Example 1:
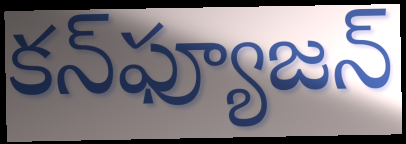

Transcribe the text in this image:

కన్‌ఫ్యూజన్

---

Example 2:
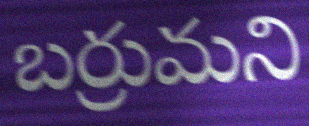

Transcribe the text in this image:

బర్రుమని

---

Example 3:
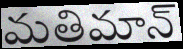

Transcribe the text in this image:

మతిమాన్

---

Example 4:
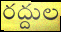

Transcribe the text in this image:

రద్దుల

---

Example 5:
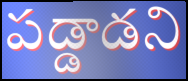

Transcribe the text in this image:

పడ్డాడని